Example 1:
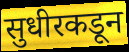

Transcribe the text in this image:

सुधीरकडून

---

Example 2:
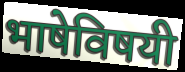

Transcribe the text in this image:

भाषेविषयी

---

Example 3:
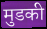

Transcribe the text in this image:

मुडकी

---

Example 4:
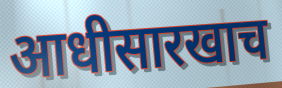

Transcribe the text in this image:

आधीसारखाच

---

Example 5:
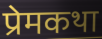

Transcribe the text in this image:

प्रेमकथा